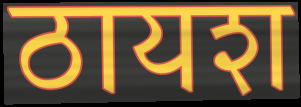
ठायश